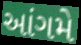
આંગમે